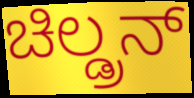
ಚಿಲ್ಡ್ರನ್